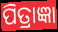
ପିତ୍ରାଜ୍ଞା